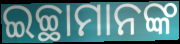
ଇଚ୍ଛାମାନଙ୍କ